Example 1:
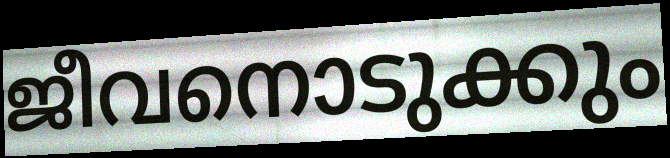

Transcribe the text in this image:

ജീവനൊടുക്കും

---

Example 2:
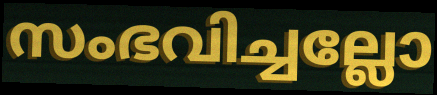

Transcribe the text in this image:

സംഭവിച്ചല്ലോ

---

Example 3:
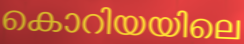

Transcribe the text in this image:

കൊറിയയിലെ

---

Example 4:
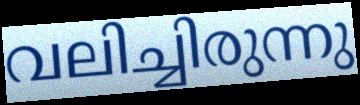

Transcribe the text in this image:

വലിച്ചിരുന്നു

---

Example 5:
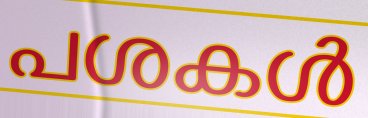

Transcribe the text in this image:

പശകൾ